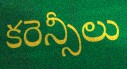
కరెన్సీలు